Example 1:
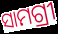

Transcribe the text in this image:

ସାମଗ୍ରୀ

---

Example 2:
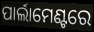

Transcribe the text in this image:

ପାର୍ଲାମେଣ୍ଟରେ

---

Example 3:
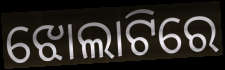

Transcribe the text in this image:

ଝୋଲାଟିରେ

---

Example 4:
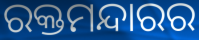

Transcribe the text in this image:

ରକ୍ତମନ୍ଦାରର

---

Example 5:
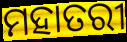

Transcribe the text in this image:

ମହାତରୀ